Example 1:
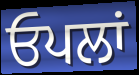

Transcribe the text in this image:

ਓਪਲਾਂ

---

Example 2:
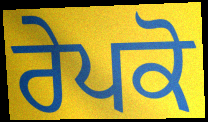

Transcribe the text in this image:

ਰੇਪਕੋ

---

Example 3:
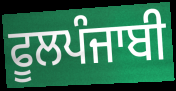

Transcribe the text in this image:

ਫੂਲਪੰਜਾਬੀ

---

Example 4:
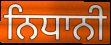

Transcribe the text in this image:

ਨਿਧਾਨੀ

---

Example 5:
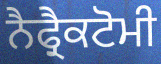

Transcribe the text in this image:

ਨੈਫ੍ਰੈਕਟੋਮੀ